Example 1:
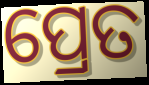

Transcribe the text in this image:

ପ୍ରେତ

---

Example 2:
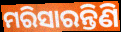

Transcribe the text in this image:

ମରିସାରନ୍ତିଣି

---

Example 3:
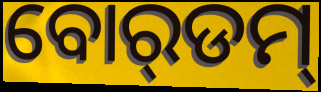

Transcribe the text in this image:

ବୋର୍‌ଡମ୍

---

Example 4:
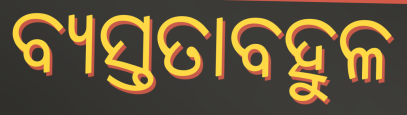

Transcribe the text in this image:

ବ୍ୟସ୍ତତାବହୁଳ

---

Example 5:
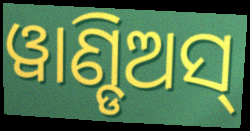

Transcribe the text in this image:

ୱାଣ୍ଡିଅସ୍